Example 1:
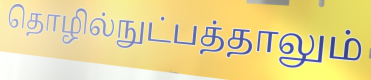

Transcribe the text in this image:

தொழில்நுட்பத்தாலும்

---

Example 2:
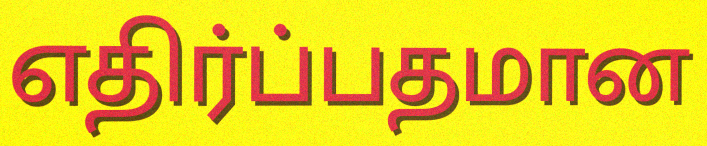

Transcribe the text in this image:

எதிர்ப்பதமான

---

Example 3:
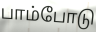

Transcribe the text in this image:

பாம்போடு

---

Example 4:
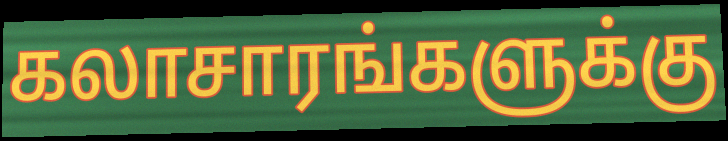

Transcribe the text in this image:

கலாசாரங்களுக்கு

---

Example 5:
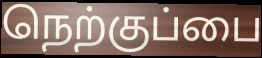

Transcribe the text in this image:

நெற்குப்பை